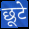
छूटे